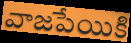
వాజపేయికి